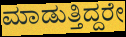
ಮಾಡುತ್ತಿದ್ದರೇ